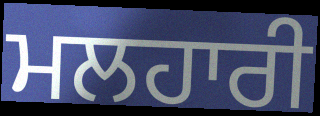
ਮਲਹਾਰੀ